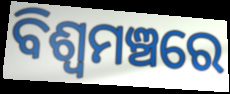
ବିଶ୍ୱମଞ୍ଚରେ